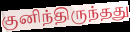
குனிந்திருந்தது